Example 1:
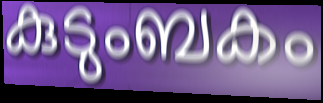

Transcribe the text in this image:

കുടുംബകം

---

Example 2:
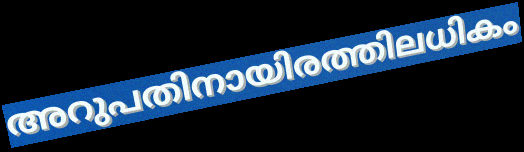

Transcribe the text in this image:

അറുപതിനായിരത്തിലധികം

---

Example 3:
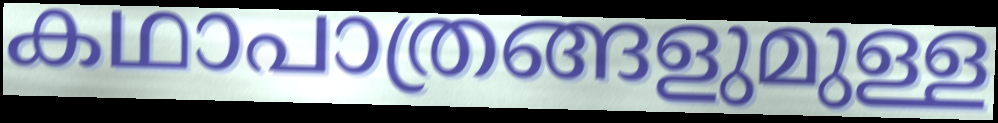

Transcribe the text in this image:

കഥാപാത്രങ്ങളുമുള്ള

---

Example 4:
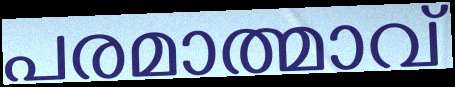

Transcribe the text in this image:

പരമാത്മാവ്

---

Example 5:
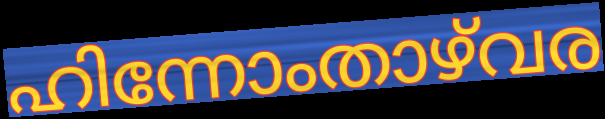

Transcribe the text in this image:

ഹിന്നോംതാഴ്‌വര